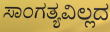
ಸಾಂಗತ್ಯವಿಲ್ಲದ